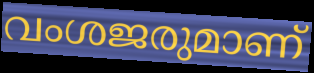
വംശജരുമാണ്